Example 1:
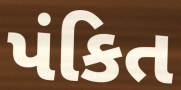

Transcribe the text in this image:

પંકિત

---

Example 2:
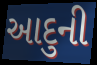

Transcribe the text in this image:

આદુની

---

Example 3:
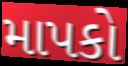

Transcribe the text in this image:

માપકો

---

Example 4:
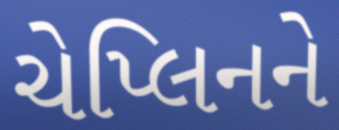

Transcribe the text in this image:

ચેપ્લિનને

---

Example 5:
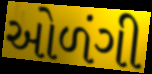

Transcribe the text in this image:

ઓળંગી